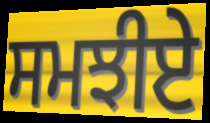
ਸਮਝੀਏ